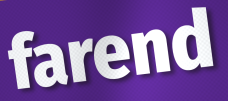
farend